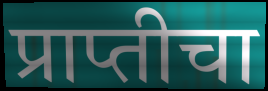
प्राप्तीचा